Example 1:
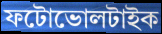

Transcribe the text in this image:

ফটোভোলটাইক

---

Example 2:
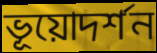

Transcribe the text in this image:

ভূয়োদর্শন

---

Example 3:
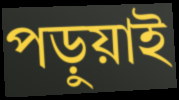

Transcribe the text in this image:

পড়ুয়াই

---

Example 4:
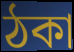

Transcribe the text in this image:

ঠকা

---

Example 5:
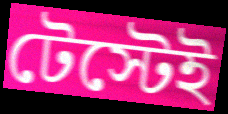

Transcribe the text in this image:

টেস্টেই